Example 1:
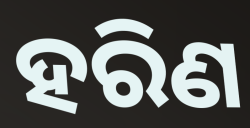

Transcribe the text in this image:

ହରିଣ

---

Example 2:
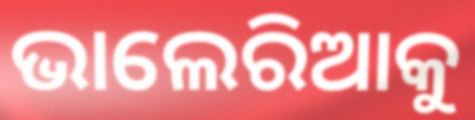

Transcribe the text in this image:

ଭାଲେରିଆକୁ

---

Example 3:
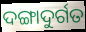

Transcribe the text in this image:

ଦଙ୍ଗାଦୁର୍ଗତ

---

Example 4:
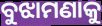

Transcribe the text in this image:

ବୁଝାମଣାକୁ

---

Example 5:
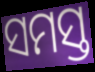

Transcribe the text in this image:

ସମସ୍ତ